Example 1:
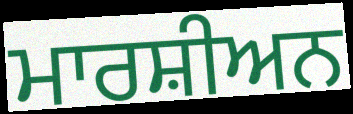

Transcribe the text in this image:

ਮਾਰਸ਼ੀਅਨ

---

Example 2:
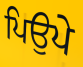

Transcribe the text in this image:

ਪਿਉਪੇ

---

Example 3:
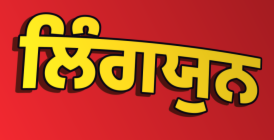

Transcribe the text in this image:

ਲਿੰਗਯੁਨ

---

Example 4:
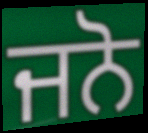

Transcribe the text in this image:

ਜਨੋ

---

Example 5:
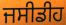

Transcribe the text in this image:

ਜਸੀਡੀਹ